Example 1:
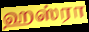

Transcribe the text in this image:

ஹஸ்ரா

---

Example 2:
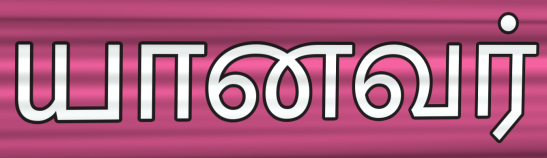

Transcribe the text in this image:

யானவர்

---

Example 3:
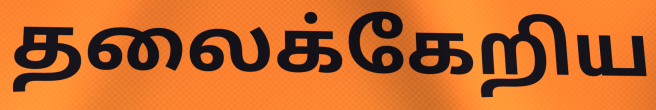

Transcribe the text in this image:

தலைக்கேறிய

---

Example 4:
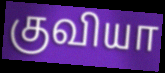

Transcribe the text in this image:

குவியா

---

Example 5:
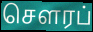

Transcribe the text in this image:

செளரப்